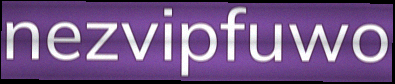
nezvipfuwo